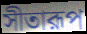
সীতারূপ